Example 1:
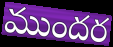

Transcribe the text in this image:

ముందర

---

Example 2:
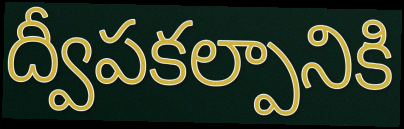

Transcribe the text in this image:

ద్వీపకల్పానికి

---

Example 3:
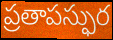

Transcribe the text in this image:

ప్రతాపస్ఫుర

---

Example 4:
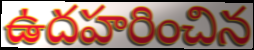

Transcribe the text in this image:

ఉదహరించిన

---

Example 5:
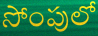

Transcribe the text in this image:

సోంపులో